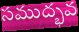
సముద్భవ